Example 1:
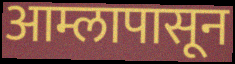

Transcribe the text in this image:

आम्लापासून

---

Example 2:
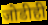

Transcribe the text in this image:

जोडीही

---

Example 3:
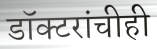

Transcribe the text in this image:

डॉक्टरांचीही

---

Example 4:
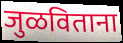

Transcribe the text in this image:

जुळविताना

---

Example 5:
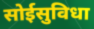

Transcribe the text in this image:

सोईसुविधा